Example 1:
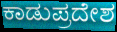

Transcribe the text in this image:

ಕಾಡುಪ್ರದೇಶ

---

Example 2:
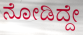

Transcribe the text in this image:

ನೋಡಿದ್ದೇ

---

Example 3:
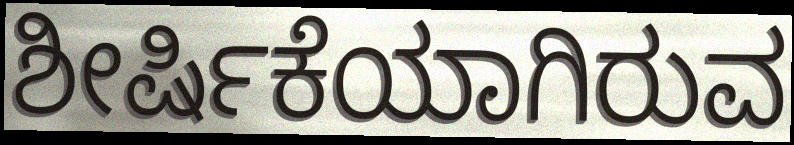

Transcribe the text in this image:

ಶೀರ್ಷಿಕೆಯಾಗಿರುವ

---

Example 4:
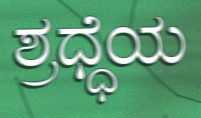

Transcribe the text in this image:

ಶ್ರಧ್ಧೆಯ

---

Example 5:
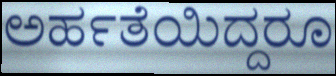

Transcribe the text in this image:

ಅರ್ಹತೆಯಿದ್ದರೂ